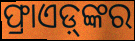
ଫ୍ରାଏଡ଼୍‍ଙ୍କର